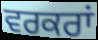
ਵਰਕਰਾਂ